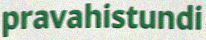
pravahistundi